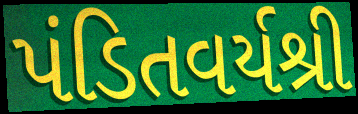
પંડિતવર્યશ્રી